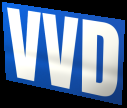
VVD